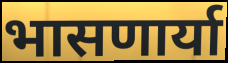
भासणार्या